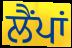
ਲੈਂਪਾਂ